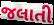
જલાતી